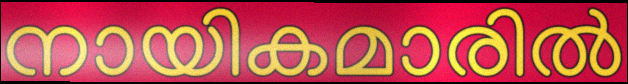
നായികമാരിൽ